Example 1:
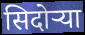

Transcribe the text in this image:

सिदोर्‍या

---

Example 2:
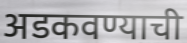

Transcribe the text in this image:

अडकवण्याची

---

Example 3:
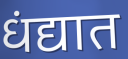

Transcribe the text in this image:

धंद्यात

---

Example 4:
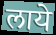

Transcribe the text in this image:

लाये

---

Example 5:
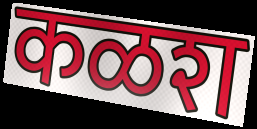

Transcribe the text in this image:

कळश